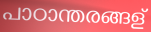
പാഠാന്തരങ്ങള്